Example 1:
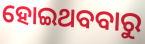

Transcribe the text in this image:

ହୋଇଥବବାରୁ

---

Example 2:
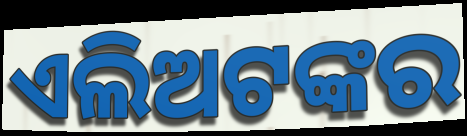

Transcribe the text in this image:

ଏଲିଅଟଙ୍କର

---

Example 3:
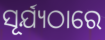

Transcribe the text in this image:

ସୂର୍ଯ୍ୟଠାରେ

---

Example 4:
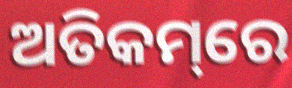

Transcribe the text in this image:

ଅତିକମ୍‌ରେ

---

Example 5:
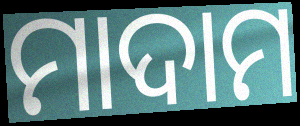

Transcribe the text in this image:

ମାଦାମ